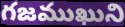
గజముఖుని